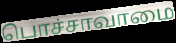
பொச்சாவாமை